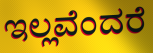
ಇಲ್ಲವೆಂದರೆ